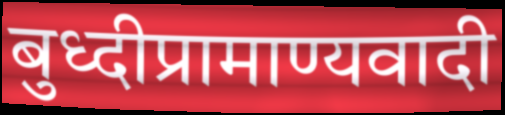
बुध्दीप्रामाण्यवादी